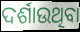
ଦର୍ଶାଉଥିବା